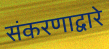
संकरणाद्वारे